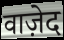
वाज़ेद